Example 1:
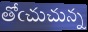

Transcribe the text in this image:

తోఁచుచున్న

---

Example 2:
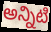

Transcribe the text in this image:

అన్నిటి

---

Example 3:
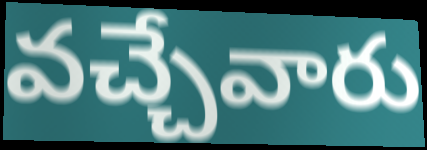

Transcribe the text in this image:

వచ్చేవారు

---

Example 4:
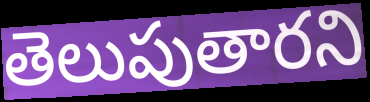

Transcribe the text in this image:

తెలుపుతారని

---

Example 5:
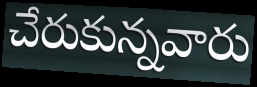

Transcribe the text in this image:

చేరుకున్నవారు